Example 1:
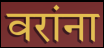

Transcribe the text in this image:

वरांना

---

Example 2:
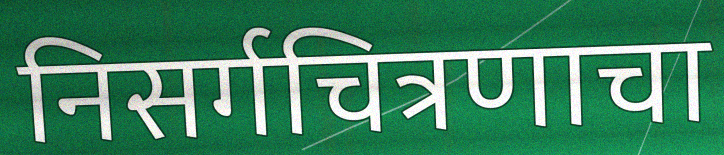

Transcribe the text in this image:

निसर्गचित्रणाचा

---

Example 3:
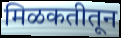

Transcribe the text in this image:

मिळकतीतून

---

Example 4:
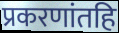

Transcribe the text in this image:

प्रकरणांतहि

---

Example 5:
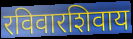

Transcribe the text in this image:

रविवारशिवाय